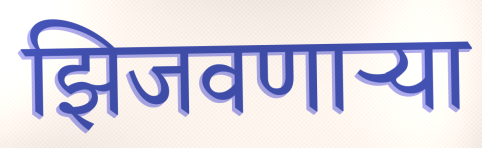
झिजवणाऱ्या